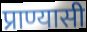
प्राण्यासी